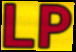
LP